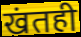
खंतही